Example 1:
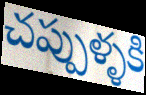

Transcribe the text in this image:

చప్పుళ్ళకి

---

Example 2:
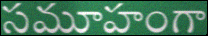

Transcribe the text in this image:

సమూహంగా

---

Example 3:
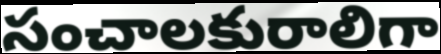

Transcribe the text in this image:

సంచాలకురాలిగా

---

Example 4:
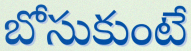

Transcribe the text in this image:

బోసుకుంటే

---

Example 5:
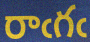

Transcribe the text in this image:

రాఁగఁ